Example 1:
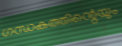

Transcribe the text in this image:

ഗന്ധകത്തിന്റെയും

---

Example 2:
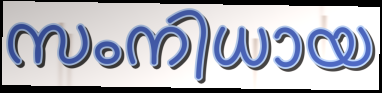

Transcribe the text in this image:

സംനിധായ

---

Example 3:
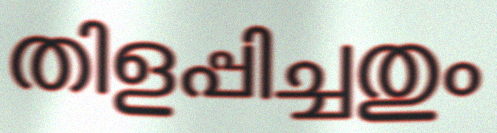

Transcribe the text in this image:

തിളപ്പിച്ചതും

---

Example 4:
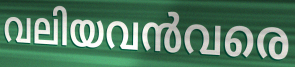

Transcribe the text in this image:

വലിയവൻവരെ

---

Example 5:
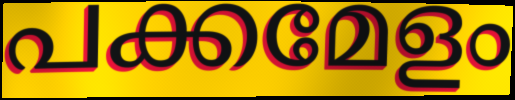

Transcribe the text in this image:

പക്കമേളം